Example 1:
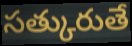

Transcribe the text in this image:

సత్కురుతే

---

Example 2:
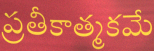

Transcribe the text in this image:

ప్రతీకాత్మకమే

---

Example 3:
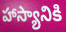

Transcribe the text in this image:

హాస్యానికి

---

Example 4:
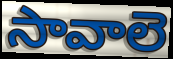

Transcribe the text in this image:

సావాలె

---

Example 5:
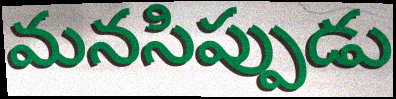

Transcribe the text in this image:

మనసిప్పుడు